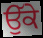
ਉੱਕੇ